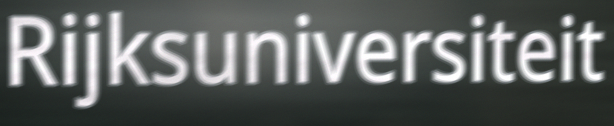
Rijksuniversiteit